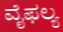
ವೈಫಲ್ಯ